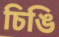
চিঙি